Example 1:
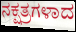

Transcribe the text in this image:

ನಕ್ಷತ್ರಗಳಾದ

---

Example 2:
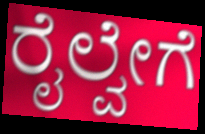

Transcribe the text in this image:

ರೈಲ್ವೇಗೆ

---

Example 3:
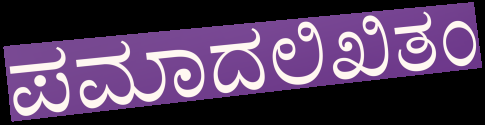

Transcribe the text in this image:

ಪಮಾದಲಿಖಿತಂ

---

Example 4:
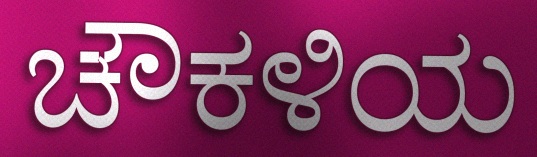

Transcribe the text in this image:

ಚೌಕಳಿಯ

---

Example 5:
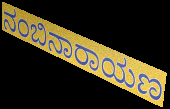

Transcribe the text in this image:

ನಂಬಿನಾರಾಯಣ